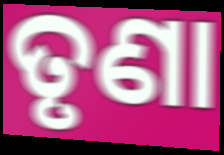
ତୃଣା